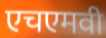
एचएमवी